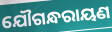
ଯୌଗନ୍ଧରାୟଣ